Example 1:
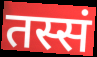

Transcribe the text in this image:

तस्सं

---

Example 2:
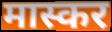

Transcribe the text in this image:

मास्कर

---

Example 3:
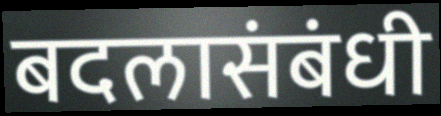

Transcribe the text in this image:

बदलासंबंधी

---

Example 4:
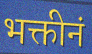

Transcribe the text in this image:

भक्तीनं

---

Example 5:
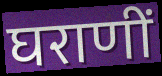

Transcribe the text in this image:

घराणीं